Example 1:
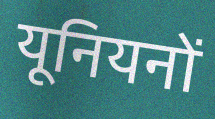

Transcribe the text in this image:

यूनियनों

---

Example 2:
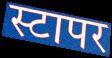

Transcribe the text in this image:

स्टापर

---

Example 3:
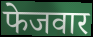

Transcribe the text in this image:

फेजवार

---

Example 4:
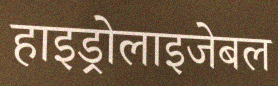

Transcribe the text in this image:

हाइड्रोलाइजेबल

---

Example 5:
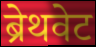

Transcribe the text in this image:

ब्रेथवेट